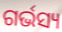
ଗର୍ଭସ୍ୟ